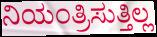
ನಿಯಂತ್ರಿಸುತ್ತಿಲ್ಲ